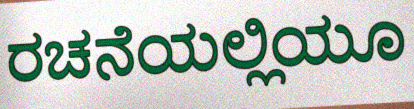
ರಚನೆಯಲ್ಲಿಯೂ